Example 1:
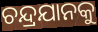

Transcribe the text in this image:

ଚନ୍ଦ୍ରଯାନକୁ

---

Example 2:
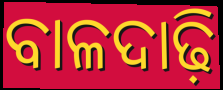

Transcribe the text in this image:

ବାଳଦାଢ଼ି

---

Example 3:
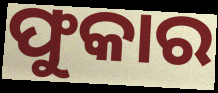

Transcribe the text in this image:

ଫୁକାର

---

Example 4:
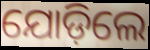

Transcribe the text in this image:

ଯୋଡ଼ିଲେ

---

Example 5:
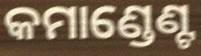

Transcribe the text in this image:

କମାଣ୍ଡେଣ୍ଟ